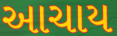
આચાય